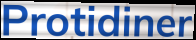
Protidiner